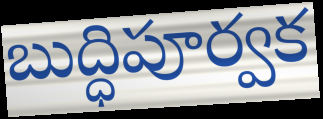
బుద్ధిపూర్వక